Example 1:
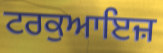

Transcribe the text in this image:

ਟਰਕੁਆਇਜ਼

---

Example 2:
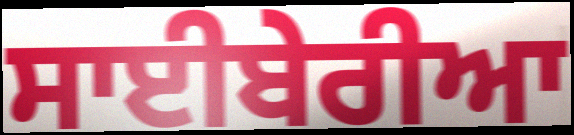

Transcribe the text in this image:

ਸਾਈਬੇਰੀਆ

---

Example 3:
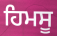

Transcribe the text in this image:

ਹਿਮਸੂ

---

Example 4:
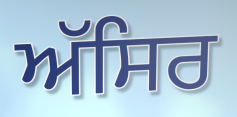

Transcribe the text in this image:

ਅੱਸਿਰ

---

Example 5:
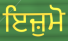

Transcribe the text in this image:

ਇਜ਼ੁਮੋ